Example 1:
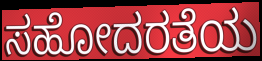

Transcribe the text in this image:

ಸಹೋದರತೆಯ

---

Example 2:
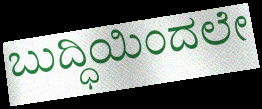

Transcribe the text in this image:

ಬುದ್ಧಿಯಿಂದಲೇ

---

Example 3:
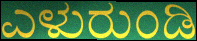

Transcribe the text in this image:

ಎಳುರುಂಡಿ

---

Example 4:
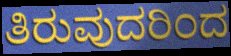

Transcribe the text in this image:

ತಿರುವುದರಿಂದ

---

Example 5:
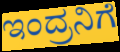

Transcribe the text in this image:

ಇಂದ್ರನಿಗೆ